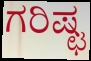
ಗರಿಷ್ಟ